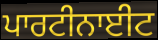
ਪਾਰਟੀਨਾਈਟ